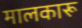
मालकारू